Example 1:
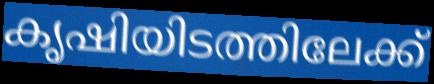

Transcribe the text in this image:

കൃഷിയിടത്തിലേക്ക്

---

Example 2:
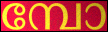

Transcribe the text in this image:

മ്പോ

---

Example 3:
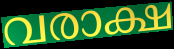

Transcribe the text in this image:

വരാക്ഷ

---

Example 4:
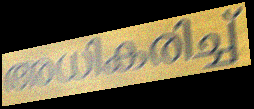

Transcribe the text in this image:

അധികരിച്ച്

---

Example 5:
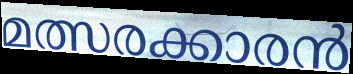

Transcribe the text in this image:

മത്സരക്കാരൻ